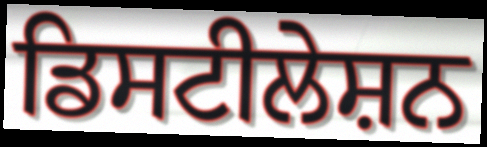
ਡਿਸਟੀਲੇਸ਼ਨ